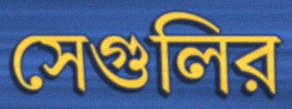
সেগুলির